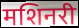
मशिनरी